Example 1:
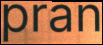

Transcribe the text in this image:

pran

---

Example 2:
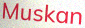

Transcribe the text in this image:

Muskan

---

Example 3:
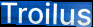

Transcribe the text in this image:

Troilus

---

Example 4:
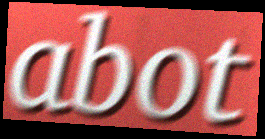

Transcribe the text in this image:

abot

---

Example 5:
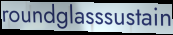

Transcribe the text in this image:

roundglasssustain